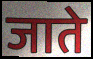
जाते